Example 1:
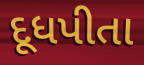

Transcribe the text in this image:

દૂધપીતા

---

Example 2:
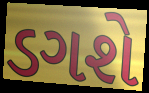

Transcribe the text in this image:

ડગશે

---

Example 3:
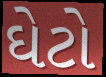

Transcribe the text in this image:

ઘેટો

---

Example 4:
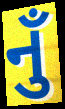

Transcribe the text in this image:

નુઁ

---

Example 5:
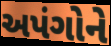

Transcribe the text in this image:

અપંગોને